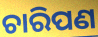
ଚାରିପଣ